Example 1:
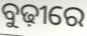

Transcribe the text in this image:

ବୁଢ଼ୀରେ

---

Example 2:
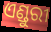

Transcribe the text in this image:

ଏଣ୍ଡୁରୀ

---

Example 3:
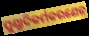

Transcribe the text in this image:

ପୁଣ୍ଯାଦିକର୍ମକରଣେନ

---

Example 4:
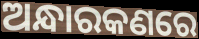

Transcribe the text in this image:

ଅନ୍ଧାରକଣରେ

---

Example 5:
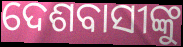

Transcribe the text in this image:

ଦେଶବାସୀଙ୍କୁ